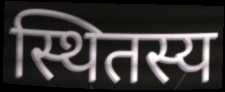
स्थितस्य